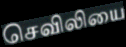
செவிலியை